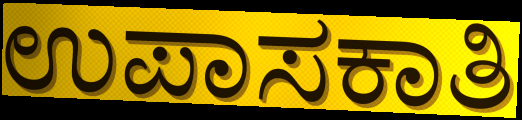
ಉಪಾಸಕಾತಿ